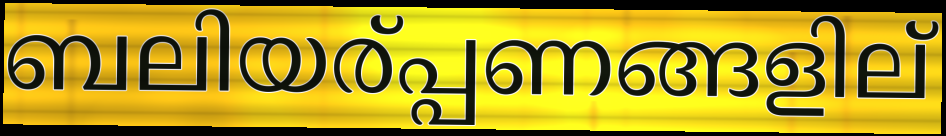
ബലിയര്പ്പണങ്ങളില്